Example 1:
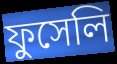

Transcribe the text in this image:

ফুসেলি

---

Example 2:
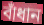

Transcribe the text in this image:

বাঁধান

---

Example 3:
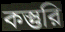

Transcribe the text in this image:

কস্তুরি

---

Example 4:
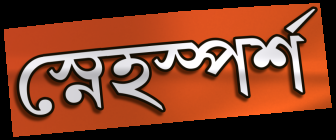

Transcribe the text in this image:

স্নেহস্পর্শ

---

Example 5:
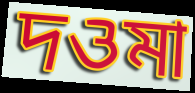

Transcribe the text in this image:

দওমা